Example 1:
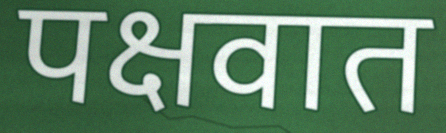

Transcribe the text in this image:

पक्षवात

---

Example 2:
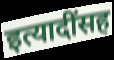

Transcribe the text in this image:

इत्यादींसह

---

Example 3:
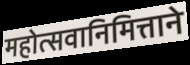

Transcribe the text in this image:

महोत्सवानिमित्ताने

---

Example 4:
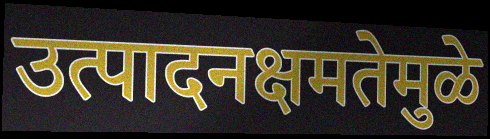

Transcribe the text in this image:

उत्पादनक्षमतेमुळे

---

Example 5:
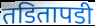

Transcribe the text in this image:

तडितापडी